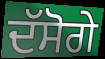
ਦੱਸੋਗੇ